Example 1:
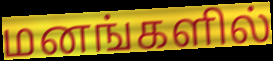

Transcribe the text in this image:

மனங்களில்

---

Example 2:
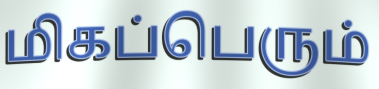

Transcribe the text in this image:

மிகப்பெரும்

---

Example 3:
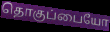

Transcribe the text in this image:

தொகுப்பையோ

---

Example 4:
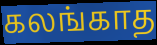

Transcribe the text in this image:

கலங்காத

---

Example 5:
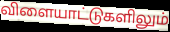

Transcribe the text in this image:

விளையாட்டுகளிலும்